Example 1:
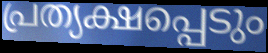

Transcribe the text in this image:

പ്രത്യക്ഷപ്പെടും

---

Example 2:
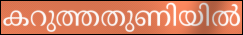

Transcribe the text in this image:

കറുത്തതുണിയിൽ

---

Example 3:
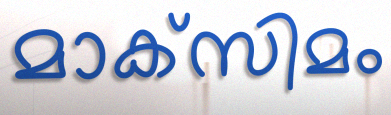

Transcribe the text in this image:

മാക്‌സിമം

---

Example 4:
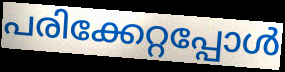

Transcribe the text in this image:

പരിക്കേറ്റപ്പോൾ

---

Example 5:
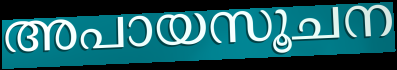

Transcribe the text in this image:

അപായസൂചന